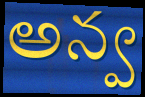
అన్వ